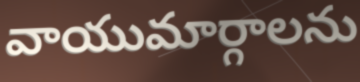
వాయుమార్గాలను